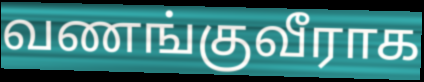
வணங்குவீராக